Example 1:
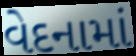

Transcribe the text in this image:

વેદનામાં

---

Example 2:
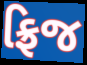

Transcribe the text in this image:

ફ્રિજ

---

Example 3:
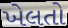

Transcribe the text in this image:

ખેલતો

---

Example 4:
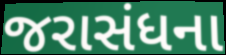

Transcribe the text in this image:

જરાસંધના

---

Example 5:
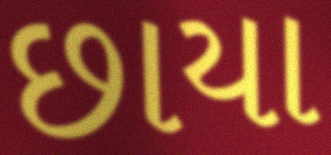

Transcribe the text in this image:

છાયા